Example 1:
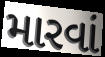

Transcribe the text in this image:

મારવાં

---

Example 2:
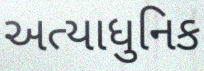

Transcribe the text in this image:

અત્યાધુનિક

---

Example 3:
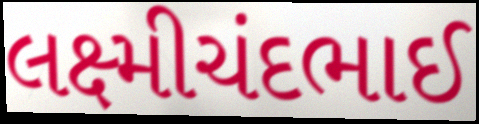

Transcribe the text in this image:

લક્ષ્મીચંદભાઈ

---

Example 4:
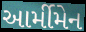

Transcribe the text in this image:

આર્મીમેન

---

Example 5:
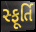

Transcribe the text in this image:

સ્ફૂર્તિ